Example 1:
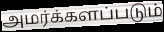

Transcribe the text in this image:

அமர்க்களப்படும்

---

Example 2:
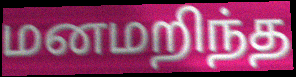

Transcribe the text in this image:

மனமறிந்த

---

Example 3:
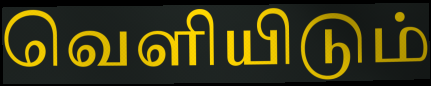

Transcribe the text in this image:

வெளியிடும்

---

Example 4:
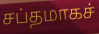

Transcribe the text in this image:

சப்தமாகச்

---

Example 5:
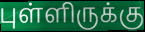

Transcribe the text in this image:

புள்ளிருக்கு